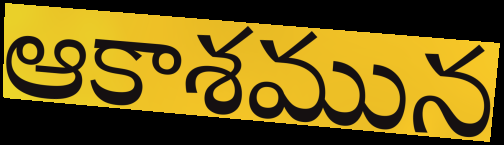
ఆకాశమున